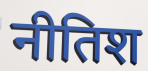
नीतिश